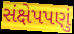
સંક્ષેપપણું